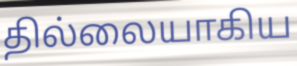
தில்லையாகிய